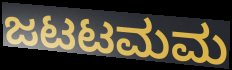
ಜಟಟಮಮ